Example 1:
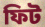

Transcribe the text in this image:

ফিট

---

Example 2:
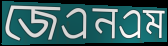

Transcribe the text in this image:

জেএনএম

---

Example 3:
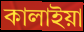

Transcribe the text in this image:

কালাইয়া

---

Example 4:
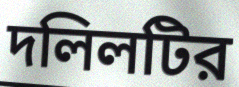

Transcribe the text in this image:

দলিলটির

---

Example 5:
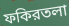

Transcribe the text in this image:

ফকিরতলা